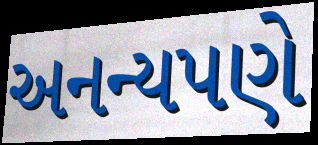
અનન્યપણે